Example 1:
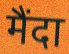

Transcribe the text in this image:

मैंदा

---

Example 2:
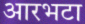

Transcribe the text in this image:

आरभटा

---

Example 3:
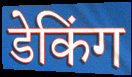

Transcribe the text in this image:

डेकिंग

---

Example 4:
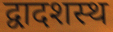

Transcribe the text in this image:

द्वादशस्थ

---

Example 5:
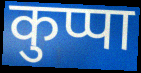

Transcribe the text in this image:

कुप्पा